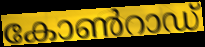
കോൺറാഡ്